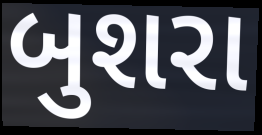
બુશરા